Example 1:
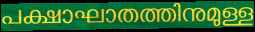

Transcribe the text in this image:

പക്ഷാഘാതത്തിനുമുള്ള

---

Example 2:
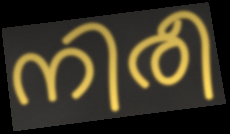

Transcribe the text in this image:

നിരീ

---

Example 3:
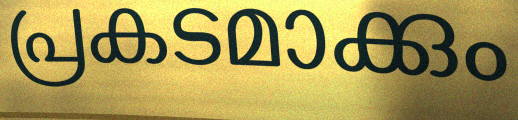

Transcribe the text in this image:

പ്രകടമാക്കും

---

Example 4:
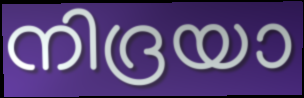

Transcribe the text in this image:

നിദ്രയാ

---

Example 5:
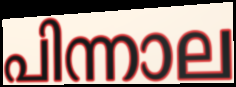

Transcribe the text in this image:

പിന്നാല